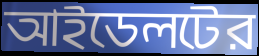
আইডেলটের